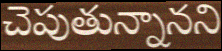
చెపుతున్నానని